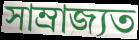
সাম্ৰাজ্যত